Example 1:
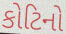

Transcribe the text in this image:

કોટિનો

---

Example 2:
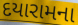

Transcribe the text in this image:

દયારામના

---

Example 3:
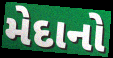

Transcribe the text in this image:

મેદાનો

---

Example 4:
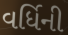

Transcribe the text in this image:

વર્ધિની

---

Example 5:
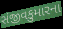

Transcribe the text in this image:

સંજીવકુમારના